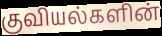
குவியல்களின்